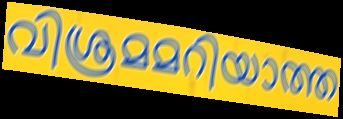
വിശ്രമമറിയാത്ത